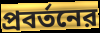
প্রবর্তনের